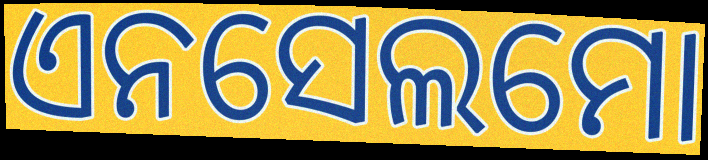
ଏନସେଲମୋ